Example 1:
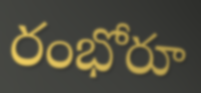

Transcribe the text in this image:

రంభోరూ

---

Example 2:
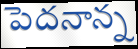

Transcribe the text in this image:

పెదనాన్న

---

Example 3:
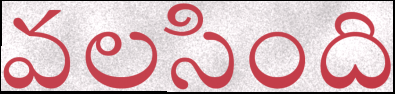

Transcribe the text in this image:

వలసింది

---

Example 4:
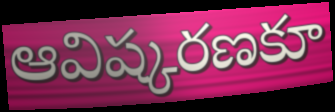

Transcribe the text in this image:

ఆవిష్కరణకూ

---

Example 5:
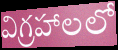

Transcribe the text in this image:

విగ్రహాలలో